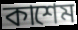
কাশেম